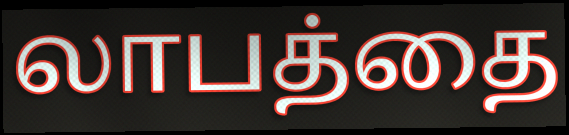
லாபத்தை